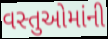
વસ્તુઓમાંની